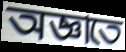
অজ্ঞাতে